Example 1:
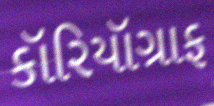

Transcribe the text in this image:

કૉરિયૉગ્રાફ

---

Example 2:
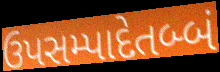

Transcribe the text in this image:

ઉપસમ્પાદેતબ્બં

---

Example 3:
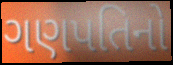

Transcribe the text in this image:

ગણપતિનો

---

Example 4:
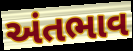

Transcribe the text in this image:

અંતભાવ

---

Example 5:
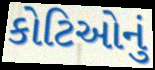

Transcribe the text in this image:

કોટિઓનું